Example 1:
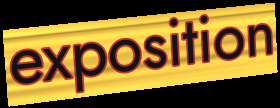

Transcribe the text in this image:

exposition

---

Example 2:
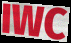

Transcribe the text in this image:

IWC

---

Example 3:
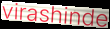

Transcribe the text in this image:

virashinde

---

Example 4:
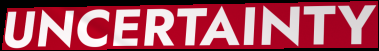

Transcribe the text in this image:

UNCERTAINTY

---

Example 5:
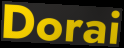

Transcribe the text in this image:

Dorai